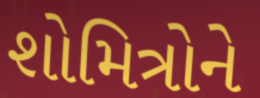
શોમિત્રોને